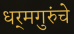
धर्मगुरुंचे